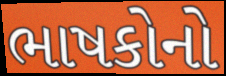
ભાષકોનો